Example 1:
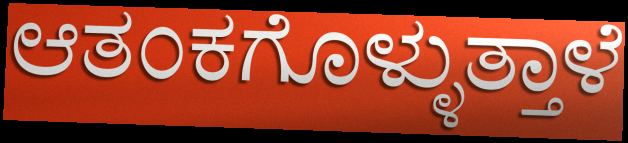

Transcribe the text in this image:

ಆತಂಕಗೊಳ್ಳುತ್ತಾಳೆ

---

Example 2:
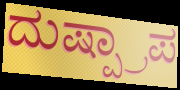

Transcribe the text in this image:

ದುಷ್ಪ್ರಾಪ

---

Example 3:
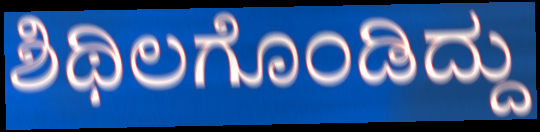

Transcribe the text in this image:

ಶಿಥಿಲಗೊಂಡಿದ್ದು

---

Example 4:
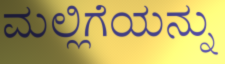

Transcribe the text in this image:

ಮಲ್ಲಿಗೆಯನ್ನು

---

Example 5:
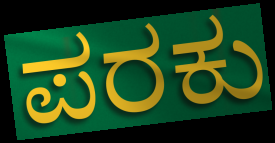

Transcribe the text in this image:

ಪರಕು